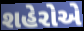
શહેરોએ